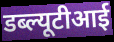
डब्ल्यूटीआई